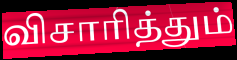
விசாரித்தும்